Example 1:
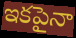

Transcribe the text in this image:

ఇకపైనా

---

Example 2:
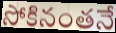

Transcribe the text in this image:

సోకినంతనే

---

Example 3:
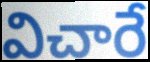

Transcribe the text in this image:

విచారే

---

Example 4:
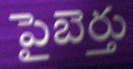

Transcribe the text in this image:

పైబెర్తు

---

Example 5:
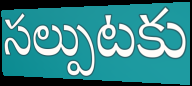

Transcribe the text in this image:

సల్పుటకు